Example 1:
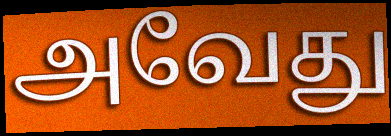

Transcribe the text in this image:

அவேது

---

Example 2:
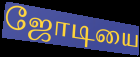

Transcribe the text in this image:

ஜோடியை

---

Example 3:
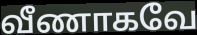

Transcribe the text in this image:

வீணாகவே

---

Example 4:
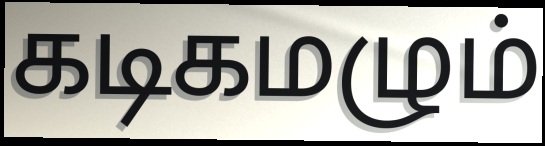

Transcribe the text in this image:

கடிகமழும்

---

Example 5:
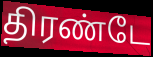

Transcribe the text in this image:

திரண்டே